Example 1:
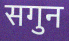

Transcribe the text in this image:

सगुन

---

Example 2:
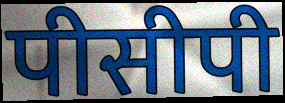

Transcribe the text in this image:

पीसीपी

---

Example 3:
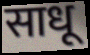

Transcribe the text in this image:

साधू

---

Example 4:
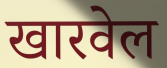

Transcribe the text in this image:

खारवेल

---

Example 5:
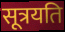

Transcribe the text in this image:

सूत्रयति